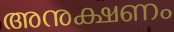
അനുക്ഷണം